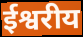
ईश्वरीय